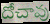
దోచావు